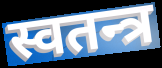
स्वतन्त्र